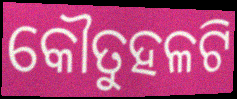
କୌତୁହଳଟି